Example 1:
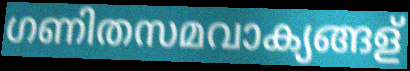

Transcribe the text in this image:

ഗണിതസമവാക്യങ്ങള്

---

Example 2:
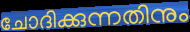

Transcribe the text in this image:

ചോദിക്കുന്നതിനും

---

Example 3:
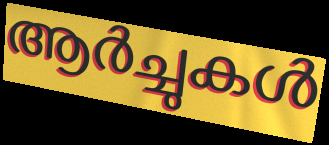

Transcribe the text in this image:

ആർച്ചുകൾ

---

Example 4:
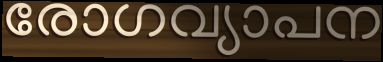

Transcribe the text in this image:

രോഗവ്യാപന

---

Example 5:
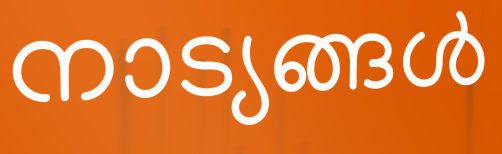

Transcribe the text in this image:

നാട്യങ്ങൾ